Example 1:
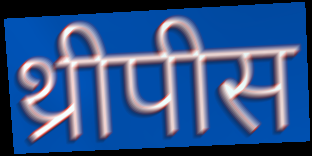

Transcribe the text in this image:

थ्रीपीस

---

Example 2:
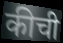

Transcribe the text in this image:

कीची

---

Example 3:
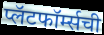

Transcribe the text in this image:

प्लॅटफॉर्म्सची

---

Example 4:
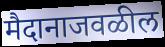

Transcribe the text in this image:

मैदानाजवळील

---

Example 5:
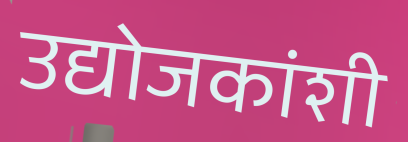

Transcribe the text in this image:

उद्योजकांशी